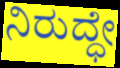
ನಿರುದ್ಧೇ